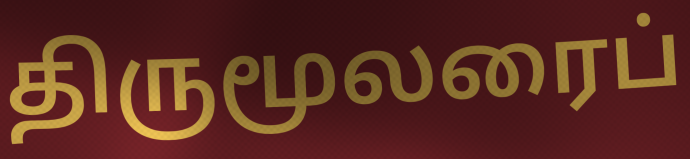
திருமூலரைப்